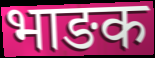
भाङक